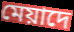
মেয়াদে